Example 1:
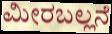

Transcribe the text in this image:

ಮೀರಬಲ್ಲನೆ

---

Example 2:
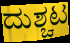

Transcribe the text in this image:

ದುಶ್ಚಟ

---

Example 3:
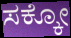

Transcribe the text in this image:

ಸಕ್ಕೋ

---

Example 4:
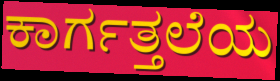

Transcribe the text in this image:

ಕಾರ್ಗತ್ತಲೆಯ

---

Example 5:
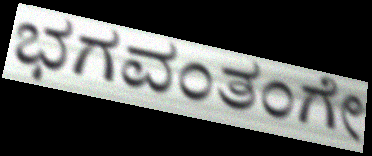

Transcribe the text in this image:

ಭಗವಂತಂಗೇ